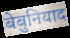
बेबुनियाद